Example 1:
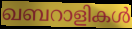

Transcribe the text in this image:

ഖബറാളികൾ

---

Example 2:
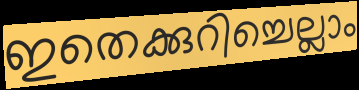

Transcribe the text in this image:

ഇതെക്കുറിച്ചെല്ലാം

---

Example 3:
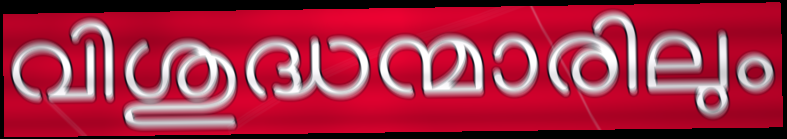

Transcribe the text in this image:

വിശുദ്ധന്മാരിലും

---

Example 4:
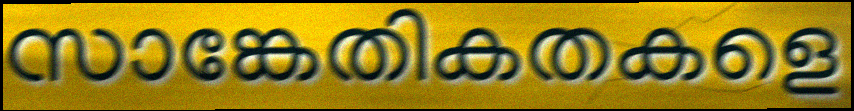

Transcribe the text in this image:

സാങ്കേതികതകളെ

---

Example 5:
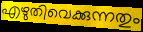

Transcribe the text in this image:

എഴുതിവെക്കുന്നതും